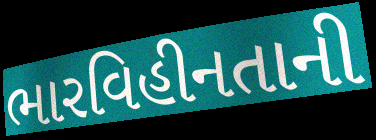
ભારવિહીનતાની